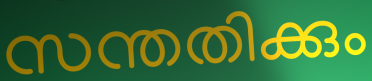
സന്തതിക്കും